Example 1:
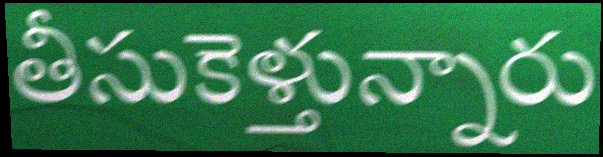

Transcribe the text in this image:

తీసుకెళ్తున్నారు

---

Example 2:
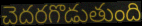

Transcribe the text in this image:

చెదరగొడుతుంది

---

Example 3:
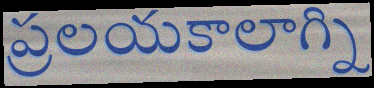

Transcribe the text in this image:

ప్రలయకాలాగ్ని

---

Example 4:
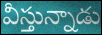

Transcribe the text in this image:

వీస్తున్నాడు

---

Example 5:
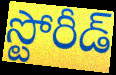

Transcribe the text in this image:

స్టోరీడ్